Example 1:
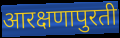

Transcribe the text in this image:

आरक्षणापुरती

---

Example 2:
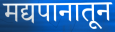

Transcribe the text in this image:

मद्यपानातून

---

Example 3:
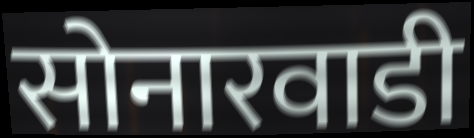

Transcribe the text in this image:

सोनारवाडी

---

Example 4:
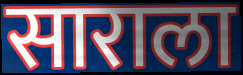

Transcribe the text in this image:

साराला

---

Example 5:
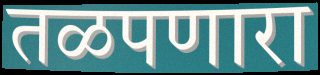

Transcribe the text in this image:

तळपणारा